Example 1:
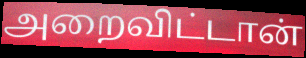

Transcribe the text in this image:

அறைவிட்டான்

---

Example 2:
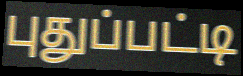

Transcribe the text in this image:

புதுப்பட்டி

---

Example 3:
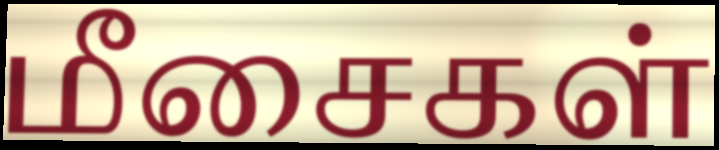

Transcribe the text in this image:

மீசைகள்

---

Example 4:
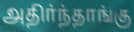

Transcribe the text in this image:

அதிர்ந்தாங்கு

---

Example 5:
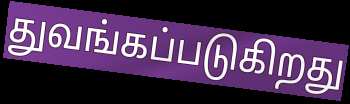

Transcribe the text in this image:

துவங்கப்படுகிறது